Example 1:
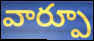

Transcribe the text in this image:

వార్పూ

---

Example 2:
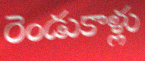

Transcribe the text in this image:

రెండుకాళ్లు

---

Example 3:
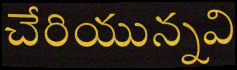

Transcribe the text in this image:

చేరియున్నవి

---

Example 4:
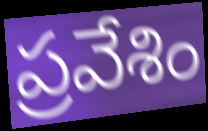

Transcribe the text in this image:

ప్రవేశిం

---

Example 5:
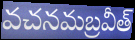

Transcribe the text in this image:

వచనమబ్రవీత్